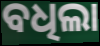
ବଧିଲା